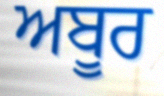
ਅਬੂਰ